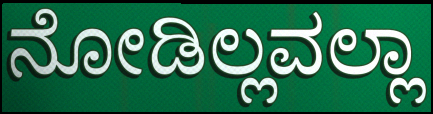
ನೋಡಿಲ್ಲವಲ್ಲಾ